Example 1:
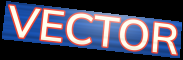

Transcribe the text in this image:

VECTOR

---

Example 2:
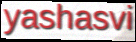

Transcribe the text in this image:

yashasvi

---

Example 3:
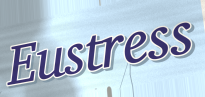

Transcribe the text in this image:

Eustress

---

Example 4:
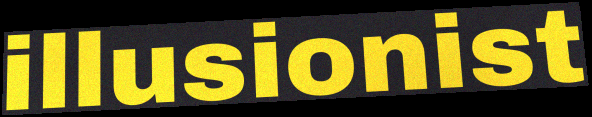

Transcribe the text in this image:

illusionist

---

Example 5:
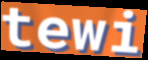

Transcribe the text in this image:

tewi